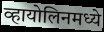
व्हायोलिनमध्ये